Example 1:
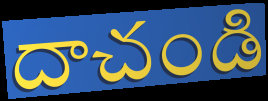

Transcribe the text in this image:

దాచండి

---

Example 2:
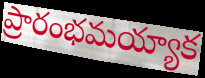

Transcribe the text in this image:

ప్రారంభమయ్యాక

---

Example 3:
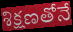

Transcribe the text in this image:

శిక్షణతోనే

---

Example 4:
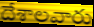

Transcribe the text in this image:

దేశాలవారు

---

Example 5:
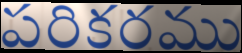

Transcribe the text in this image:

పరికరము